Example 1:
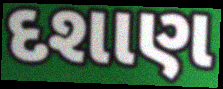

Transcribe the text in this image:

દશાણ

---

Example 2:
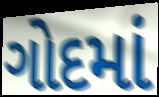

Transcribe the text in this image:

ગોદમાં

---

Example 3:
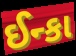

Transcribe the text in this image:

ઈન્કા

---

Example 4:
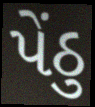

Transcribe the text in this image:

પેંઠુ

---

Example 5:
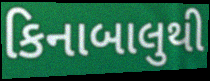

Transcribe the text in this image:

કિનાબાલુથી